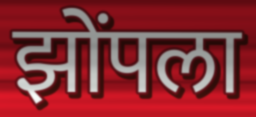
झोंपला